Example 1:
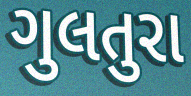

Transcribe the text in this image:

ગુલતુરા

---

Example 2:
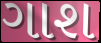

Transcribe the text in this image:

ગાશ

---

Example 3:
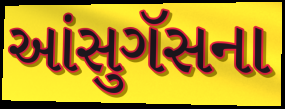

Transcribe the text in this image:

આંસુગૅસના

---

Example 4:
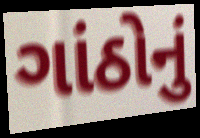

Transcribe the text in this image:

ગાંઠોનું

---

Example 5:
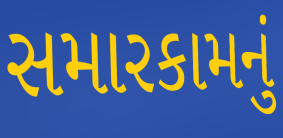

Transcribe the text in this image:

સમારકામનું